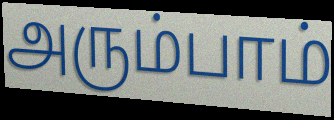
அரும்பாம்